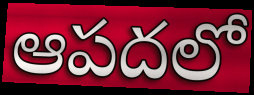
ఆపదలో